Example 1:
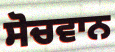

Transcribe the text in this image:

ਸੋਚਵਾਨ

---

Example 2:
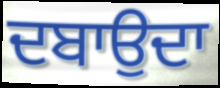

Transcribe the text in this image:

ਦਬਾਉਦਾ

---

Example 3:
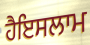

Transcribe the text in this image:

ਹੈਇਸਲਾਮ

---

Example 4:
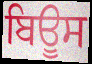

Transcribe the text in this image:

ਬਿਊਸ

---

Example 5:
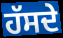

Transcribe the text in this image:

ਹੱਸਦੇ